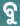
ବୁ